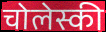
चोलेस्की